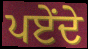
ਪਏਂਦੇ